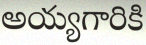
అయ్యగారికి